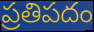
ప్రతిపదం